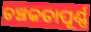
ଚଞ୍ଚକତାପୂର୍ଣ୍ଣ